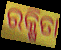
ରକ୍ଷିତା